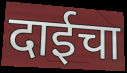
दाईचा